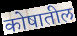
कोषातील